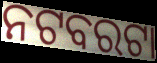
ନଟବରଟା